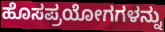
ಹೊಸಪ್ರಯೋಗಗಳನ್ನು